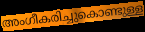
അംഗീകരിച്ചുകൊണ്ടുള്ള